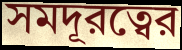
সমদূরত্বের